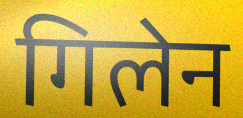
गिलेन